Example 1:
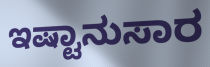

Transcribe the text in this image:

ಇಷ್ಟಾನುಸಾರ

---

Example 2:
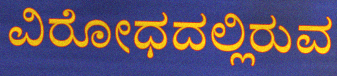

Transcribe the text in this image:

ವಿರೋಧದಲ್ಲಿರುವ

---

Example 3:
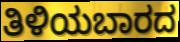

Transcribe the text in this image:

ತಿಳಿಯಬಾರದ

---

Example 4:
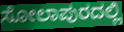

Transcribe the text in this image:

ಸೋಲಾಪುರದಲ್ಲಿ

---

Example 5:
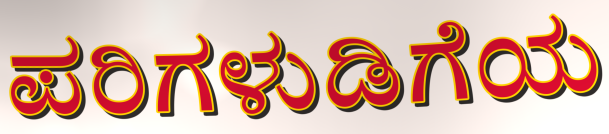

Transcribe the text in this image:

ಪರಿಗಳುಡಿಗೆಯ